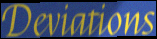
Deviations